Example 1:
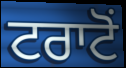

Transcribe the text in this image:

ਟਰਾਟੋਂ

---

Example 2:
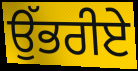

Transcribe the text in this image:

ਉੱਭਰੀਏ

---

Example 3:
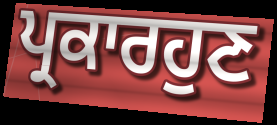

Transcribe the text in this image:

ਪ੍ਰਕਾਰਹੁਣ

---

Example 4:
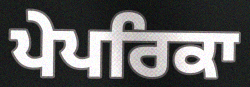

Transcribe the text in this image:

ਪੇਪਰਿਕਾ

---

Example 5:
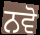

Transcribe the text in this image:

ਨਵੋ